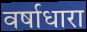
वर्षाधारा